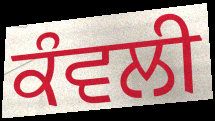
ਕੰਵਲੀ